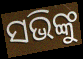
ସଭିଙ୍କୁ